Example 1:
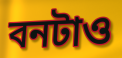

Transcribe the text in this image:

বনটাও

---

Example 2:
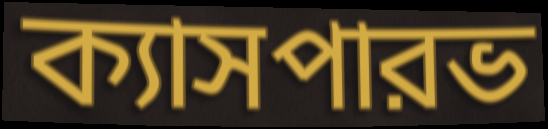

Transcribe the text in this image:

ক্যাসপারভ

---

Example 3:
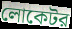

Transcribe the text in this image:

লোকেটর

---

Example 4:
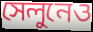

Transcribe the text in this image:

সেলুনেও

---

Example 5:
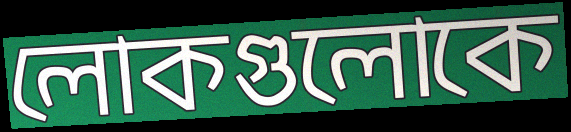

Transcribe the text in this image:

লোকগুলোকে